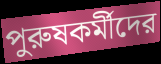
পুরুষকর্মীদের